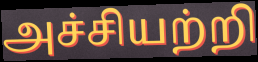
அச்சியற்றி